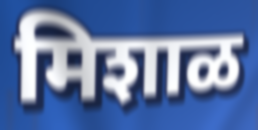
मिशाळ